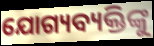
ଯୋଗ୍ୟବ୍ୟକ୍ତିଙ୍କୁ